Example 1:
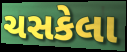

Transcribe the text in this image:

ચસકેલા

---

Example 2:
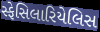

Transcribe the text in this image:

સ્ફેસિલારિયેલિસ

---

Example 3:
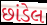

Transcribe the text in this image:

છાંડેલ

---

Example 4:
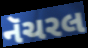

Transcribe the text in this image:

નૅચરલ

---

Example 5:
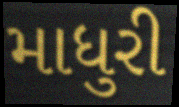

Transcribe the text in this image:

માધુરી